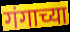
गंगाच्या